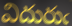
విదురుఁ